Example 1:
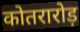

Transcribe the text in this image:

कोतरारोड़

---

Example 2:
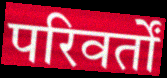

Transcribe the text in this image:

परिवर्तों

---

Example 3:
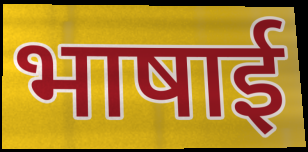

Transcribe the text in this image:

भाषाई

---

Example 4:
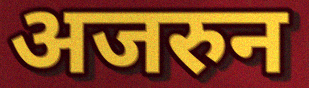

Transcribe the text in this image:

अजरुन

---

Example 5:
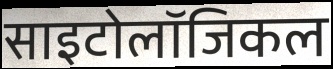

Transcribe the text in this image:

साइटोलॉजिकल